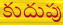
కుదుపు